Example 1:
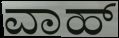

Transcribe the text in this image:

ವಾಹ್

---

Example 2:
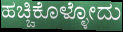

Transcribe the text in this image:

ಹಚ್ಚಿಕೊಳ್ಳೋದು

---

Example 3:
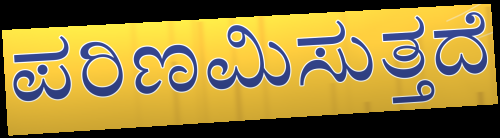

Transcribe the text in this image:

ಪರಿಣಮಿಸುತ್ತದೆ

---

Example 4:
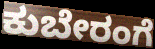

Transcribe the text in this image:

ಕುಬೇರಂಗೆ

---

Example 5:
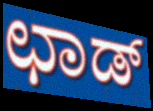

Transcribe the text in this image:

ಛಾಡ್